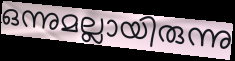
ഒന്നുമല്ലായിരുന്നു